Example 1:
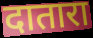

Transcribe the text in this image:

दातारा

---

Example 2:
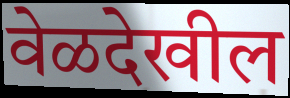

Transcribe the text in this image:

वेळदेखील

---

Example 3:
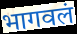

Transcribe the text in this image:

भागवलं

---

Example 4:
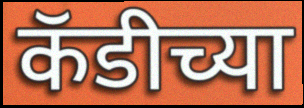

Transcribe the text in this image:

कॅडीच्या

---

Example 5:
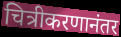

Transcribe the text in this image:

चित्रीकरणानंतर